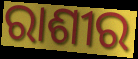
ରାଶୀର